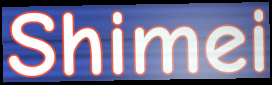
Shimei